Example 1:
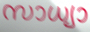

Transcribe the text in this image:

സാധ്യാ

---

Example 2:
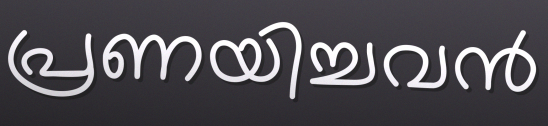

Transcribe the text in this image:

പ്രണയിച്ചവൻ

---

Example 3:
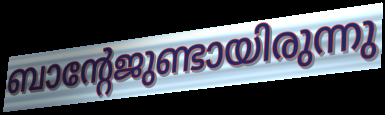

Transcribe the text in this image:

ബാന്റേജുണ്ടായിരുന്നു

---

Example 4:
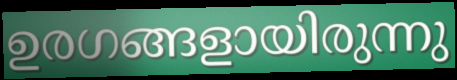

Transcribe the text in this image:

ഉരഗങ്ങളായിരുന്നു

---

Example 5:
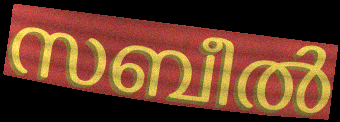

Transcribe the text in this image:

സബീൽ